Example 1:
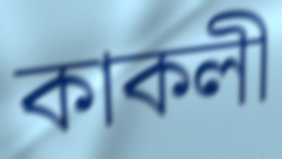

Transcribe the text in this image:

কাকলী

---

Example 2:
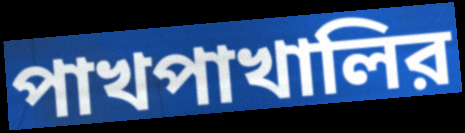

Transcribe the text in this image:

পাখপাখালির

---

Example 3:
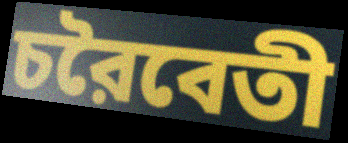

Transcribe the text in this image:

চরৈবেতী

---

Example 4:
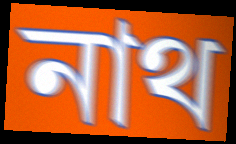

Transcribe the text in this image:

নাথ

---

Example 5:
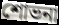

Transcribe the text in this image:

শোভনা